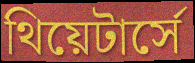
থিয়েটার্সে